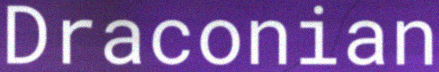
Draconian